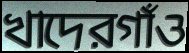
খাদেরগাঁও